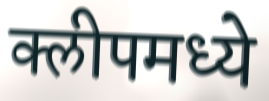
क्लीपमध्ये